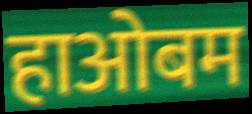
हाओबम